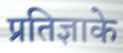
प्रतिज्ञाके